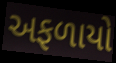
અફળાયો